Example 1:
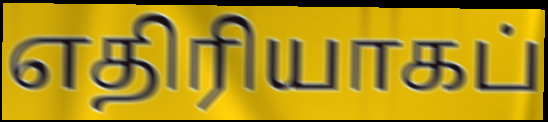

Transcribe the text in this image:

எதிரியாகப்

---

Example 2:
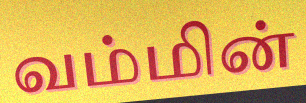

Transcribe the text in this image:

வம்மின்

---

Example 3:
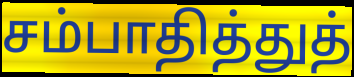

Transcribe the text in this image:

சம்பாதித்துத்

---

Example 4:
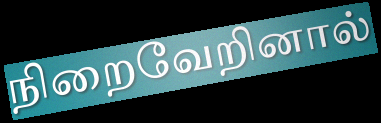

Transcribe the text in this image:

நிறைவேறினால்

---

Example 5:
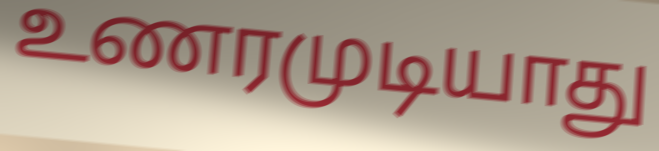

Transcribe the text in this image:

உணரமுடியாது